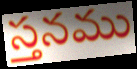
స్తనము